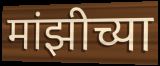
मांझीच्या